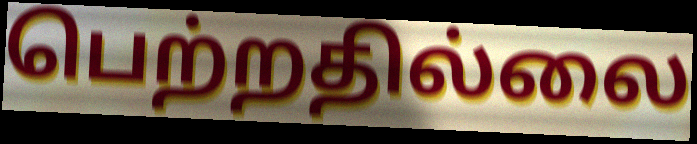
பெற்றதில்லை